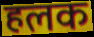
हलक